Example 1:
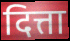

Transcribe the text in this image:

दित्ता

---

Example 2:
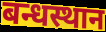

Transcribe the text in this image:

बन्धस्थान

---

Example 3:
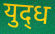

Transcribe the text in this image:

युद्‍ध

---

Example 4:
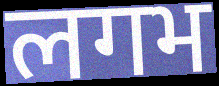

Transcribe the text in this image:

लगभ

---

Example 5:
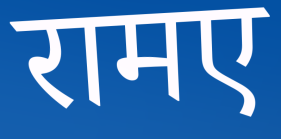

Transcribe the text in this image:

रामए